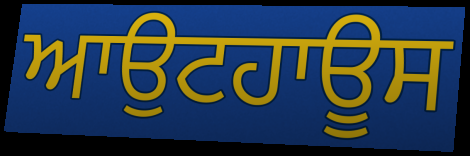
ਆਉਟਹਾਊਸ